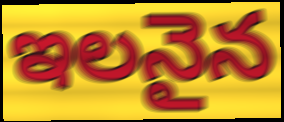
ఇలనైన